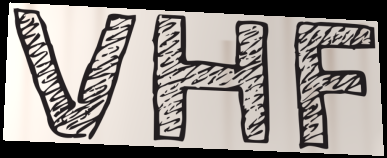
VHF